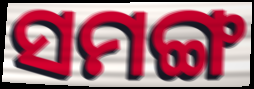
ସମଙ୍ଗ